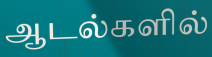
ஆடல்களில்